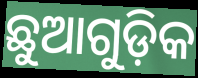
ଛୁଆଗୁଡ଼ିକ